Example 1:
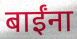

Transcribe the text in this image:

बाईंना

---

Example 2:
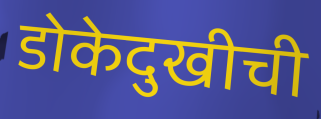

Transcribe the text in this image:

डोकेदुखीची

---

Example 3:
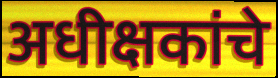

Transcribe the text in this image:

अधीक्षकांचे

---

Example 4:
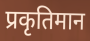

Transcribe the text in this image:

प्रकृतिमान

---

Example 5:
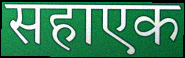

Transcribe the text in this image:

सहाएक